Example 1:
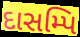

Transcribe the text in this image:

દાસમ્પિ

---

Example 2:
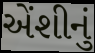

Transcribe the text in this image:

એંશીનું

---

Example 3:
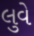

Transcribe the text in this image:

લુવે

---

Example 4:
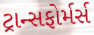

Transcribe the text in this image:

ટ્રાન્સફોર્મર્સ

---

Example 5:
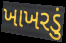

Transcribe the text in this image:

ખાખરડું